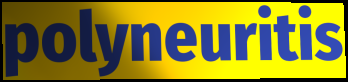
polyneuritis